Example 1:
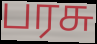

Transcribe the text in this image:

பரசு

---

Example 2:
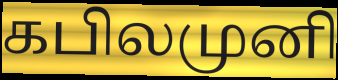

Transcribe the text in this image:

கபிலமுனி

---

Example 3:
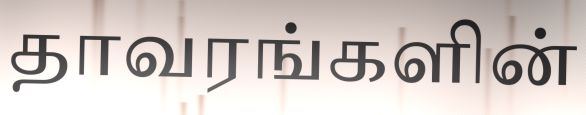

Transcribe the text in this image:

தாவரங்களின்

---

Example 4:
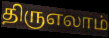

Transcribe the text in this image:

திருஎலாம்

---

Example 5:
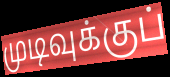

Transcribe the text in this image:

முடிவுக்குப்